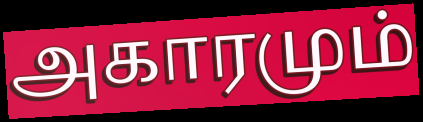
அகாரமும்